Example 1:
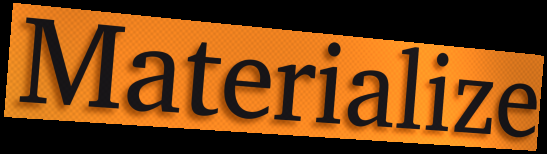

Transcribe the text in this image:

Materialize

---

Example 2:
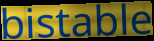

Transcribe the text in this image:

bistable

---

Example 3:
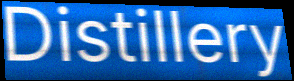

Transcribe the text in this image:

Distillery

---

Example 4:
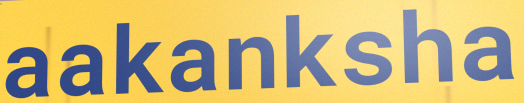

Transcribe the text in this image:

aakanksha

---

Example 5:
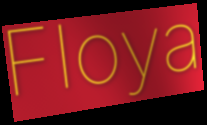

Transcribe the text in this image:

Floya